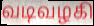
வடிவழகி